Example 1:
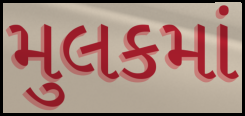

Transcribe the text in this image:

મુલકમાં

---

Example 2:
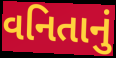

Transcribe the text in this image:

વનિતાનું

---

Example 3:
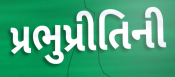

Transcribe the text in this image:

પ્રભુપ્રીતિની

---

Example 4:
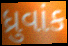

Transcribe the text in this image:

ધ્રુવાંક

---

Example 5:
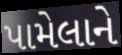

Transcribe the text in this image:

પામેલાને